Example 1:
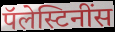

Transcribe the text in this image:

पॅलेस्टिनींस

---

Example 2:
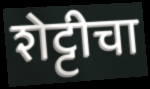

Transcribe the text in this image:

शेट्टीचा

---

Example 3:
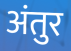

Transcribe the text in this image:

अंतुर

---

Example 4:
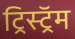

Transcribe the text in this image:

ट्रिस्ट्रॅम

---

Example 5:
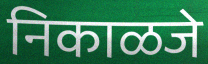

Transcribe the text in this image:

निकाळजे